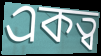
একত্ব